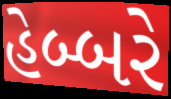
હેબ્બરે